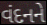
વંદનને